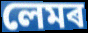
লেমৰ